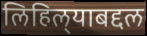
लिहिल्याबद्दल